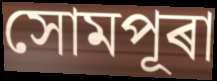
সোমপূৰা